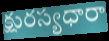
క్షురస్యధారా